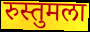
रुस्तुमला